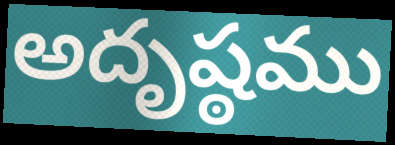
అదృష్ఠము